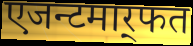
एजन्टमार्फत